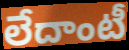
లేదాంటీ